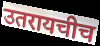
उतरायचीच